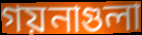
গয়নাগুলা